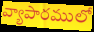
వ్యాపారములో